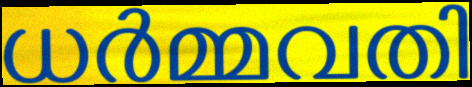
ധർമ്മവതി